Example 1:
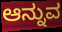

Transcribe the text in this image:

ಆನ್ನುವ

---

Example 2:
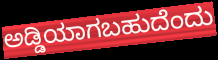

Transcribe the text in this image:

ಅಡ್ಡಿಯಾಗಬಹುದೆಂದು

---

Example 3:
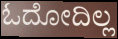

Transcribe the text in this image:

ಓದೋದಿಲ್ಲ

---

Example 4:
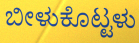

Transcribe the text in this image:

ಬೀಳುಕೊಟ್ಟಳು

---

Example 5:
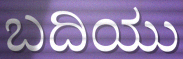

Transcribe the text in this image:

ಬದಿಯು